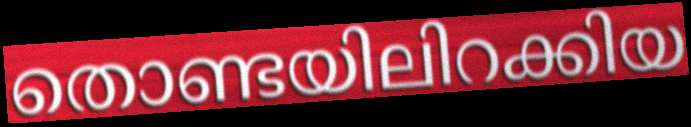
തൊണ്ടയിലിറക്കിയ